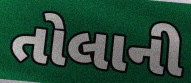
તોલાની